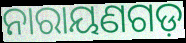
ନାରାୟଣଗଡ଼